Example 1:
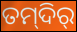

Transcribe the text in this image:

ତମ୍‍ଦିର୍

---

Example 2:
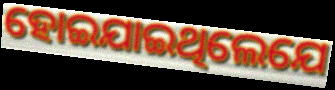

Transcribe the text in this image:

ହୋଇଯାଇଥିଲେଯେ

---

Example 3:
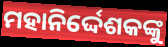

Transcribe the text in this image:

ମହାନିର୍ଦ୍ଦେଶକଙ୍କୁ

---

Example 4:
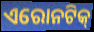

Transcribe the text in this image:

ଏରୋନଟିକ୍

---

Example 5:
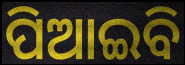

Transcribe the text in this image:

ପିଆଇବି